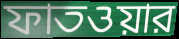
ফাতওয়ার